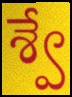
శ్వే